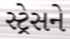
સ્ટ્રેસને